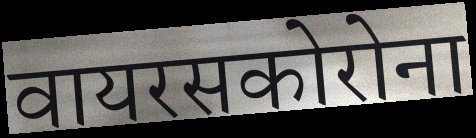
वायरसकोरोना